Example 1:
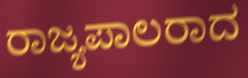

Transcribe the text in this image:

ರಾಜ್ಯಪಾಲರಾದ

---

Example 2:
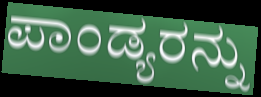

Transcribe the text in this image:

ಪಾಂಡ್ಯರನ್ನು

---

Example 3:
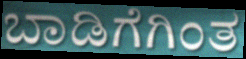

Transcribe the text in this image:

ಬಾಡಿಗೆಗಿಂತ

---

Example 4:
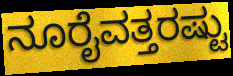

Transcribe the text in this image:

ನೂರೈವತ್ತರಷ್ಟು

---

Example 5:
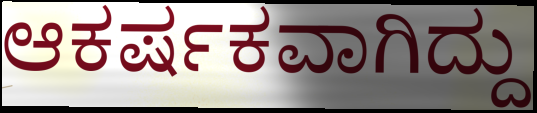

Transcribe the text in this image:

ಆಕರ್ಷಕವಾಗಿದ್ದು